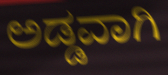
ಅಡ್ಡವಾಗಿ